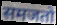
समजतो